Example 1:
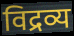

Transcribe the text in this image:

विद्रव्य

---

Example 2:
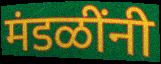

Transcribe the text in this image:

मंडळींनी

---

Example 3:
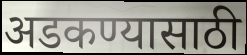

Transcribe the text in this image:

अडकण्यासाठी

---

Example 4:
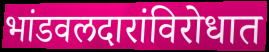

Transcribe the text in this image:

भांडवलदारांविरोधात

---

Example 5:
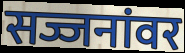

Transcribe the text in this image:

सज्जनांवर